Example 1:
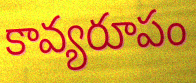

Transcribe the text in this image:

కావ్యరూపం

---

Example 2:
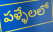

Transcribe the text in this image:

పళ్ళేలలో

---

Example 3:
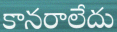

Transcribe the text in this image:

కానరాలేదు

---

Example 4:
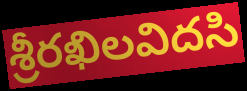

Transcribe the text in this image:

శ్రీరఖిలవిదసి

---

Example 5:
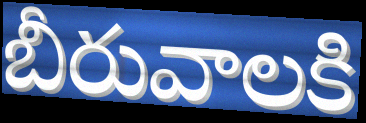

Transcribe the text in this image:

బీరువాలకి